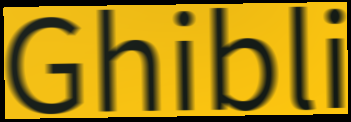
Ghibli